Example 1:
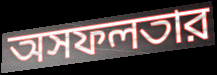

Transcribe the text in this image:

অসফলতার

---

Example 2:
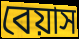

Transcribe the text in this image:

বেয়াস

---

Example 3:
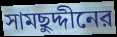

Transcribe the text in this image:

সামছুদ্দীনের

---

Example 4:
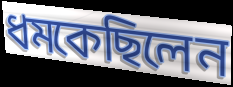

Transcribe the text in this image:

ধমকেছিলেন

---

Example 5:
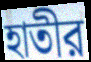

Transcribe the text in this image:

হাতীর